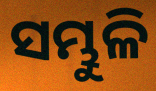
ସମ୍ଭୁଳି